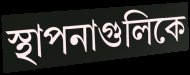
স্থাপনাগুলিকে